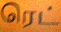
ரெட்